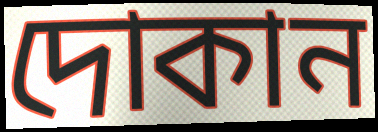
দোকান